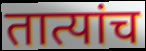
तात्यांच